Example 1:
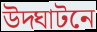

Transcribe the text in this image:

উদ্ঘাটনে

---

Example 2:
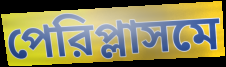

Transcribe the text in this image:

পেরিপ্লাসমে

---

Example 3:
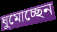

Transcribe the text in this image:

ঘুমোচ্ছেন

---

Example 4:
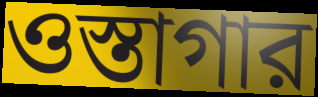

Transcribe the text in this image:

ওস্তাগার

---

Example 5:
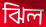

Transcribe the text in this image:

ঝিল